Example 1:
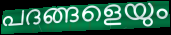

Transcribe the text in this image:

പദങ്ങളെയും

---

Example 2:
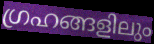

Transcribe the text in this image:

ഗ്രഹങ്ങളിലും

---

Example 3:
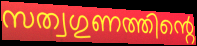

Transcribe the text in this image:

സത്വഗുണത്തിന്റെ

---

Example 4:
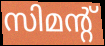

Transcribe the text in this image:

സിമന്റ്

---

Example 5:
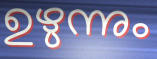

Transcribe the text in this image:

ഉഴുന്നും